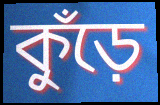
কুঁড়ে